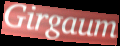
Girgaum